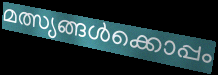
മത്സ്യങ്ങൾക്കൊപ്പം